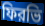
ফিরভি